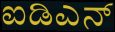
ಐಡಿಎನ್